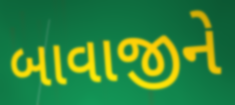
બાવાજીને